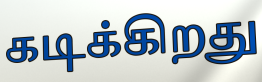
கடிக்கிறது